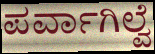
ಪರ್ವಾಗಿಲ್ವೆ